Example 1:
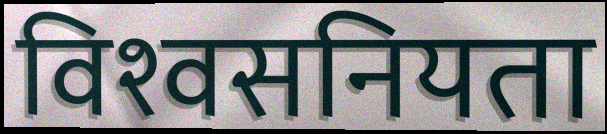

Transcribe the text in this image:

विश्वसनियता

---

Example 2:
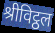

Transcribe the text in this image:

श्रीविट्ठल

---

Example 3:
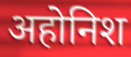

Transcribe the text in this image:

अहोनिश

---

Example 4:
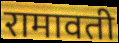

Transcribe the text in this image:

रामावती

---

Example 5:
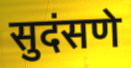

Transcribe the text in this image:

सुदंसणे